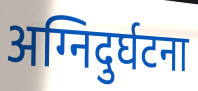
अग्निदुर्घटना